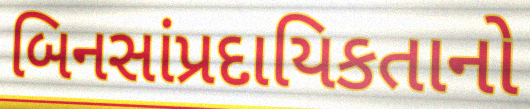
બિનસાંપ્રદાયિકતાનો